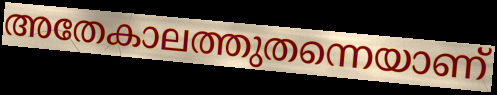
അതേകാലത്തുതന്നെയാണ്